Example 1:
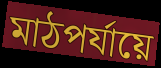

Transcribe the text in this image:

মাঠপর্যায়ে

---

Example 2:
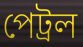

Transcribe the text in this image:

পেট্রল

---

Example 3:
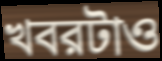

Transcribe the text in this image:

খবরটাও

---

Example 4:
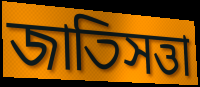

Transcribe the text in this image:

জাতিসত্তা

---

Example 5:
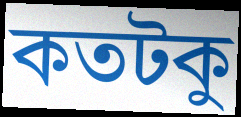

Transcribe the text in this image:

কতটকু